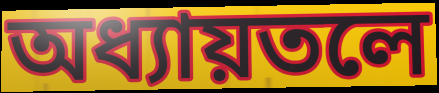
অধ্যায়তলে